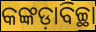
କଙ୍କଡ଼ାବିଚ୍ଛା